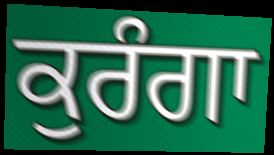
ਕੁਰੰਗਾ